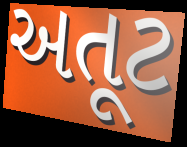
અતૂટ